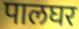
पालघर